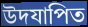
উদযাপিত